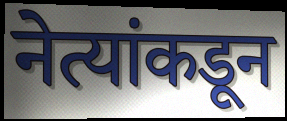
नेत्यांकडून